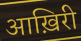
आख़िरी